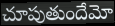
చూపుతుందేమో